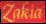
Zakia